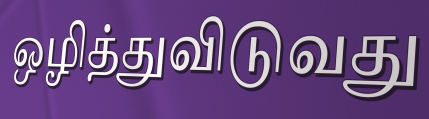
ஒழித்துவிடுவது